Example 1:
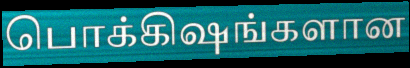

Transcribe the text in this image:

பொக்கிஷங்களான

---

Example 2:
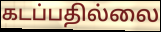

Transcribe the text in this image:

கடப்பதில்லை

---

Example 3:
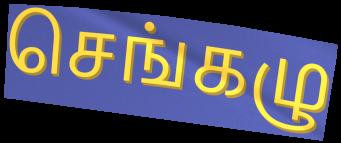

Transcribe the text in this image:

செங்கழு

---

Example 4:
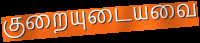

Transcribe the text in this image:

குறையுடையவை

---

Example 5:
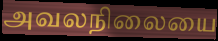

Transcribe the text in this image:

அவலநிலையை